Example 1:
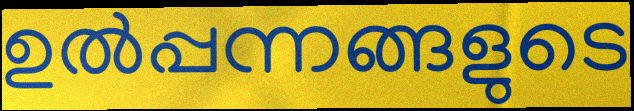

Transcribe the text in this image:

ഉൽപ്പന്നങ്ങളുടെ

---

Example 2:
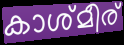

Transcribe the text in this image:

കാശ്മീര്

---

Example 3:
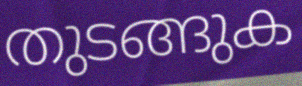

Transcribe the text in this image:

തുടങ്ങുക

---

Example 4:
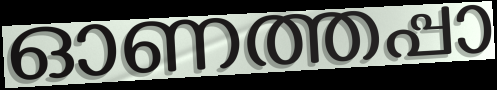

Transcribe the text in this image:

ഓണത്തപ്പാ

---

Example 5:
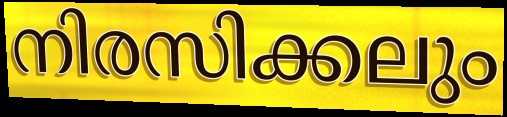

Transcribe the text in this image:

നിരസിക്കലും